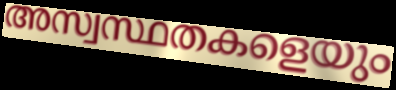
അസ്വസ്ഥതകളെയും